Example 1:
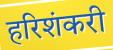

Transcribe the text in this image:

हरिशंकरी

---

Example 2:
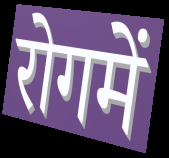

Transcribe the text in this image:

रोगमें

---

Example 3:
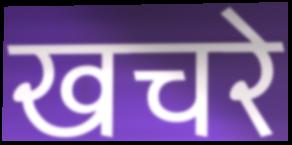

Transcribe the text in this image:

खचरे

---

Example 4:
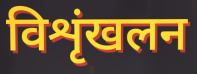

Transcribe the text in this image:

विशृंखलन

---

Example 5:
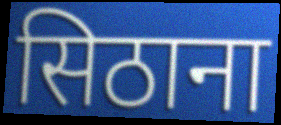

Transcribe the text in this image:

सिठाना